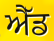
ਐੱਡ